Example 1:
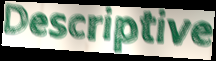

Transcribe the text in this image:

Descriptive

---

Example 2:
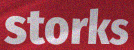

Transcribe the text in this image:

storks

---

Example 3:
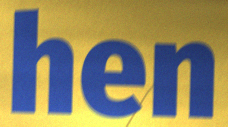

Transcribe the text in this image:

hen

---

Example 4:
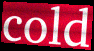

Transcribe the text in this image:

cold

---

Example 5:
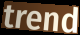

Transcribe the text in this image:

trend